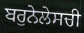
ਬਰੁਨੇਲੇਸਚੀ